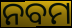
ନବମ